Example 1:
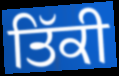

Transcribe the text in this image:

ਤਿੱਕੀ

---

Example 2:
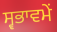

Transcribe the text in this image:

ਸ੍ਵਭਾਵਮੇਂ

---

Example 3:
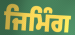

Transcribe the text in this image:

ਜਿਮਿੰਗ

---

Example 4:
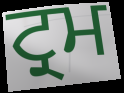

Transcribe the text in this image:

ਟ੍ਰਮ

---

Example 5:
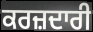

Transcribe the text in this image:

ਕਰਜ਼ਦਾਰੀ